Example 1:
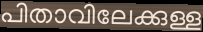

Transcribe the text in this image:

പിതാവിലേക്കുള്ള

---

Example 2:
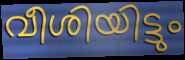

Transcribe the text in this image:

വീശിയിട്ടും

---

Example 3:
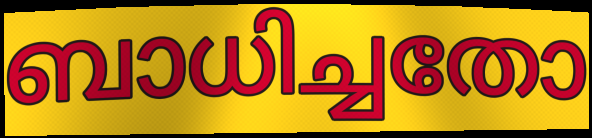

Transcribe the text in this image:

ബാധിച്ചതോ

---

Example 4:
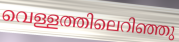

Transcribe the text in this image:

വെള്ളത്തിലെറിഞ്ഞു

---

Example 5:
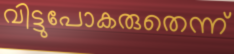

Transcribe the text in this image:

വിട്ടുപോകരുതെന്ന്